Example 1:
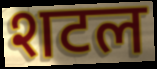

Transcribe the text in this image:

शटल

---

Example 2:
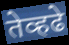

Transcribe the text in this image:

तेव्हढे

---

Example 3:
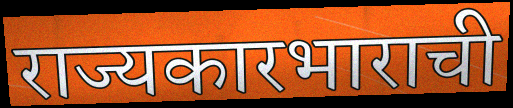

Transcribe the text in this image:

राज्यकारभाराची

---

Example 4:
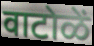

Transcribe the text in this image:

वाटोळें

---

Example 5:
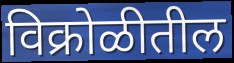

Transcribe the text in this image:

विक्रोळीतील